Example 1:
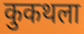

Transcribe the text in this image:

कुकथला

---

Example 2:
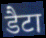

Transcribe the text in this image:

डैटा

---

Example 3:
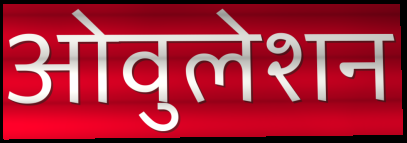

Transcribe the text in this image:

ओवुलेशन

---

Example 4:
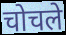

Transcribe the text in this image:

चोचले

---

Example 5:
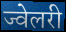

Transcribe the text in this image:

ज्वेलरी